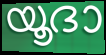
യൂദാ